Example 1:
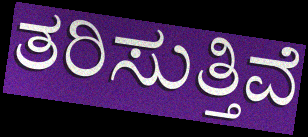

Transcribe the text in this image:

ತರಿಸುತ್ತಿವೆ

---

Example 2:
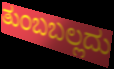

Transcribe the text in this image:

ತುಂಬಬಲ್ಲದು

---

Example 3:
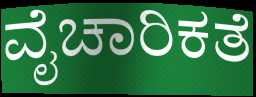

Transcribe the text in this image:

ವೈಚಾರಿಕತೆ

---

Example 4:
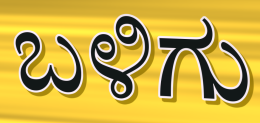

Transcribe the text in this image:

ಬಳಿಗು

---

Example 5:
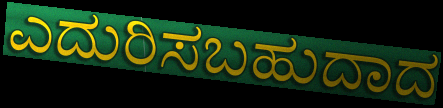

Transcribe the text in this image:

ಎದುರಿಸಬಹುದಾದ